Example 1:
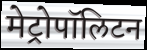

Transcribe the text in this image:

मेट्रोपॉलिटन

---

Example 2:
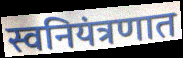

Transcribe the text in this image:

स्वनियंत्रणात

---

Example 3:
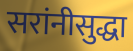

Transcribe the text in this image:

सरांनीसुद्धा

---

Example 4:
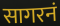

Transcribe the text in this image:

सागरनं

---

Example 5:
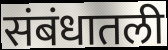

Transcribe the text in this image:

संबंधातली